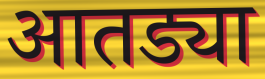
आतड्या